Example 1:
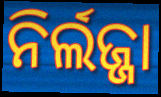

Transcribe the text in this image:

ନିର୍ଲଜ୍ଜା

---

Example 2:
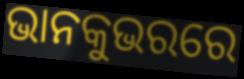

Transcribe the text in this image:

ଭାନକୁଭରରେ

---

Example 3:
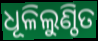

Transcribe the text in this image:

ଧୂଳିଲୁଣ୍ଠିତ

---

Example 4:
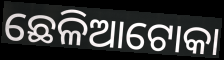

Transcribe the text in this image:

ଛେଳିଆଟୋକା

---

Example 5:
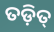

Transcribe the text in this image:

ତଡ଼ିତ୍